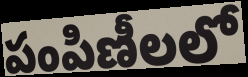
పంపిణీలలో